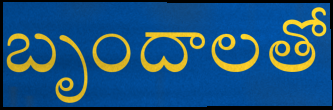
బృందాలతో